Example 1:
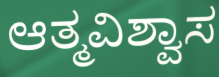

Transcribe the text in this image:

ಆತ್ಮವಿಶ್ವಾಸ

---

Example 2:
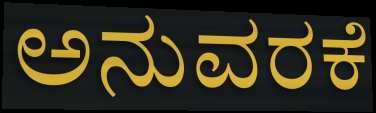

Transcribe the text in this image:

ಅನುವರಕೆ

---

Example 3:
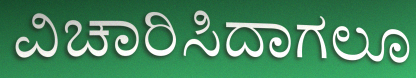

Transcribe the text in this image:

ವಿಚಾರಿಸಿದಾಗಲೂ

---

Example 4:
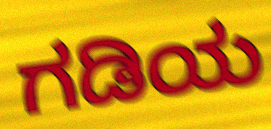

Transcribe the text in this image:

ಗಡಿಯ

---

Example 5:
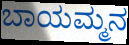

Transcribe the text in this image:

ಬಾಯಮ್ಮನ